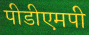
पीडीएमपी